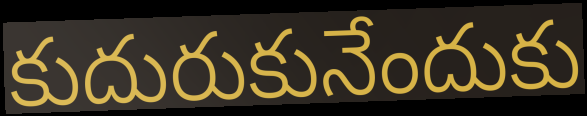
కుదురుకునేందుకు